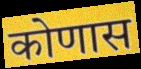
कोणास